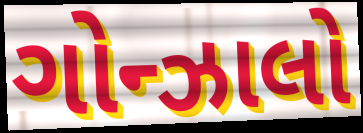
ગોન્ઝાલો